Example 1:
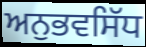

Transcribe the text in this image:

ਅਨੁਭਵਸਿੱਧ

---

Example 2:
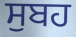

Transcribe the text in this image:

ਸੁਬਹ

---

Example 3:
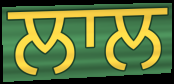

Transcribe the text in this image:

ਲਾਲ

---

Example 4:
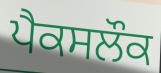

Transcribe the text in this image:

ਪੈਕਸਲੌਕ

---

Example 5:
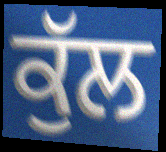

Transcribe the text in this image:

ਕੁੱਲ